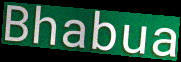
Bhabua